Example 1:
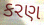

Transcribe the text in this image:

કરણ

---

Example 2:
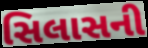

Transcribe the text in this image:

સિલાસની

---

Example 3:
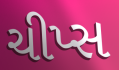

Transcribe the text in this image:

ચીપ્સ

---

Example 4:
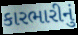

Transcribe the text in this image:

કારભારીનું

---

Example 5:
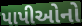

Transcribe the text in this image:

પાપીઓનો